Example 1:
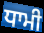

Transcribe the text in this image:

ਧਾਮੀ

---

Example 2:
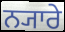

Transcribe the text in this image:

ਨ੍ਯਾਰੇ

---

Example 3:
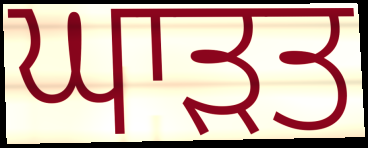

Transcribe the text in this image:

ਘਾੜਤ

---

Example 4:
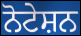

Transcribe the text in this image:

ਨੋਟੇਸ਼ਨ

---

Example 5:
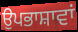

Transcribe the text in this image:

ਉਪਭਾਸ਼ਾਵਾਂ